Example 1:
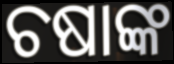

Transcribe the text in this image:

ଚଷାଙ୍କ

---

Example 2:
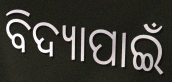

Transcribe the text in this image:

ବିଦ୍ୟାପାଇଁ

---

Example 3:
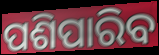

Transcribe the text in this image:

ପଶିପାରିବ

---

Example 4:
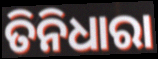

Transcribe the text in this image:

ତିନିଧାରା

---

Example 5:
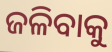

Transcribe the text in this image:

ଜଳିବାକୁ